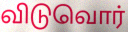
விடுவொர்